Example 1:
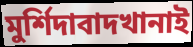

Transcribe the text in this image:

মুর্শিদাবাদখানাই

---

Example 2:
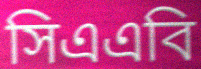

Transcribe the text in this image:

সিএএবি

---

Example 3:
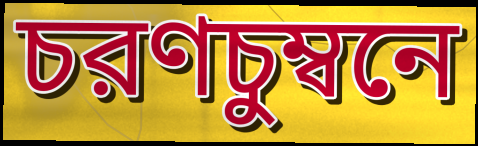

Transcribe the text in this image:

চরণচুম্বনে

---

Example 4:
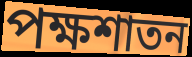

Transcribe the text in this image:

পক্ষশাতন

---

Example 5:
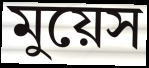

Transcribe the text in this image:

মুয়েস